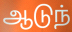
ஆடுந்